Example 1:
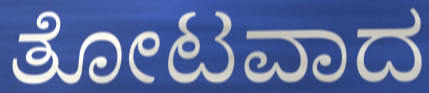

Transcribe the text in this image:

ತೋಟವಾದ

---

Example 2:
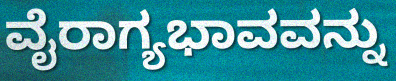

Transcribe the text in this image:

ವೈರಾಗ್ಯಭಾವವನ್ನು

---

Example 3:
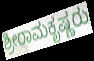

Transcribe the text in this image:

ಶ್ರೀರಾಮಕೃಷ್ಣರು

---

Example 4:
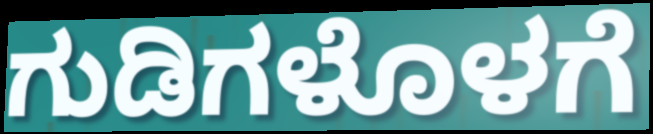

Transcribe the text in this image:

ಗುಡಿಗಳೊಳಗೆ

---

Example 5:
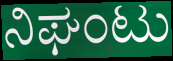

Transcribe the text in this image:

ನಿಘಂಟು